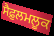
ਸੈਫ਼ੁਲਮਲੂਕ